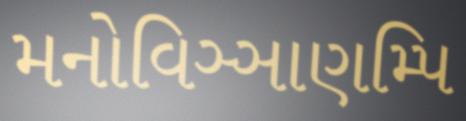
મનોવિઞ્ઞાણમ્પિ